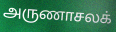
அருணாசலக்